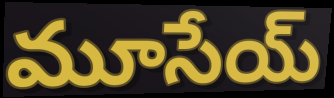
మూసేయ్